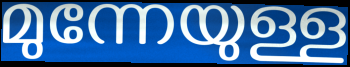
മുന്നേയുള്ള